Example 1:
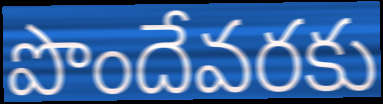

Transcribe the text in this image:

పొందేవరకు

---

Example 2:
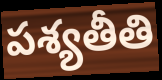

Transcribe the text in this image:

పశ్యతీతి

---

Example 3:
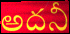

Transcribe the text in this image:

అదనీ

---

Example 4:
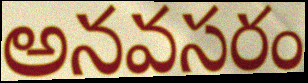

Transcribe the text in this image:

అనవసరం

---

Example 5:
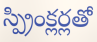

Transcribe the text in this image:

స్ప్రింక్లర్లతో